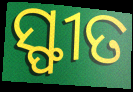
ସ୍ଫୀତ